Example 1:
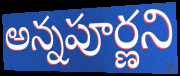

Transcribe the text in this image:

అన్నపూర్ణని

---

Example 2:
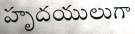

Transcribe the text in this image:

హృదయులుగా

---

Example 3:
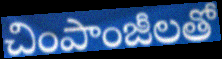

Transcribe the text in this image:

చింపాంజీలతో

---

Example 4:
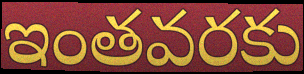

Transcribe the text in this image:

ఇంతవరకు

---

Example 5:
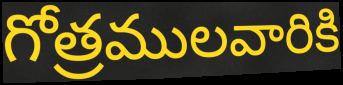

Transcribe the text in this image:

గోత్రములవారికి